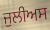
ਜੁਲੀਅਸ